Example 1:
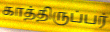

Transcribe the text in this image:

காத்திருப்பர்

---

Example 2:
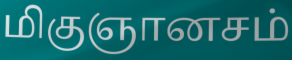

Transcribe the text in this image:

மிகுஞானசம்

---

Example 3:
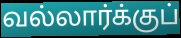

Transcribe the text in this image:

வல்லார்க்குப்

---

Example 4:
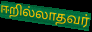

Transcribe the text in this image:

ஈறில்லாதவர்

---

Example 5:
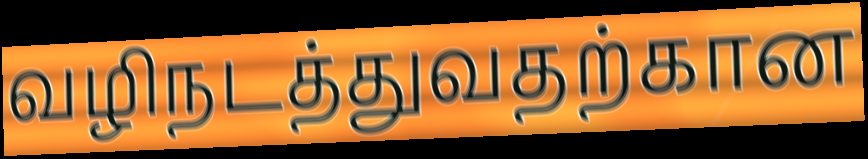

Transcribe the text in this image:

வழிநடத்துவதற்கான